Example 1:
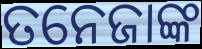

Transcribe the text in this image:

ତନେଜାଙ୍କ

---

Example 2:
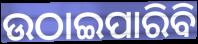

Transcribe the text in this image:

ଉଠାଇପାରିବି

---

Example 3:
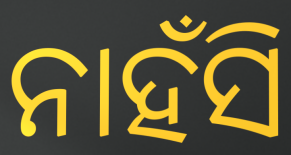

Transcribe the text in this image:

ନାହଁସି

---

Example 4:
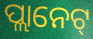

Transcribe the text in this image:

ପ୍ଲାନେଟ୍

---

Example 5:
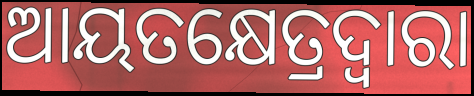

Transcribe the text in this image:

ଆୟତକ୍ଷେତ୍ରଦ୍ଵାରା